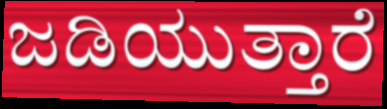
ಜಡಿಯುತ್ತಾರೆ